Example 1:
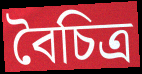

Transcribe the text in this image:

বৈচিত্র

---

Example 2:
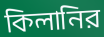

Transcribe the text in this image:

কিলানির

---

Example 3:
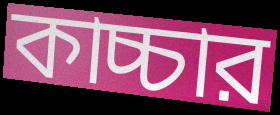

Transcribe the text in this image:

কাচ্চার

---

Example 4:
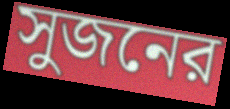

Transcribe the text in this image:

সুজনের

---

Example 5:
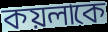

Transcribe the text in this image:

কয়লাকে